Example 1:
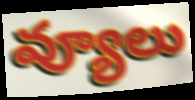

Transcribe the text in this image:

వ్యూలు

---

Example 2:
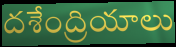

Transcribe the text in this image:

దశేంద్రియాలు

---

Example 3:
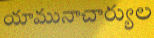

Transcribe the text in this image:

యామునాచార్యుల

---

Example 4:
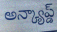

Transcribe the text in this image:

అన్క్యాప్డ్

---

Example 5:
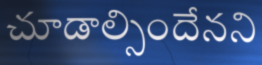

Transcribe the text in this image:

చూడాల్సిందేనని